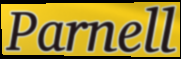
Parnell